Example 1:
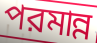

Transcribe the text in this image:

পরমান্ন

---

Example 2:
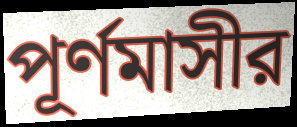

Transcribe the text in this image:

পূর্ণমাসীর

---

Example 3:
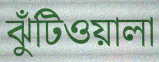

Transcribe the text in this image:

ঝুঁটিওয়ালা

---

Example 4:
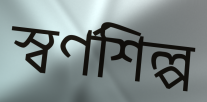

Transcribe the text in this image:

স্বর্ণশিল্প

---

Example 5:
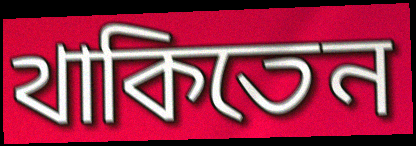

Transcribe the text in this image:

থাকিতেন